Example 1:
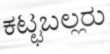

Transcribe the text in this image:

ಕಟ್ಟಬಲ್ಲರು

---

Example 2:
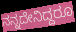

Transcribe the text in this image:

ನನ್ನದೇನಿದ್ದರೂ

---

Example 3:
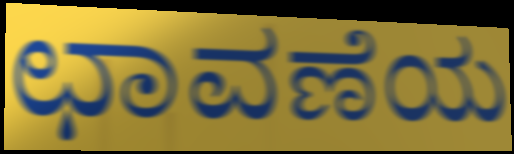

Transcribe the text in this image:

ಛಾವಣೆಯ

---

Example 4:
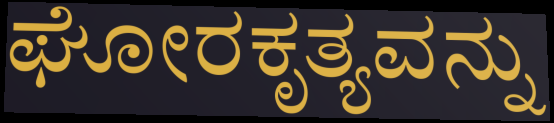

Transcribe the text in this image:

ಘೋರಕೃತ್ಯವನ್ನು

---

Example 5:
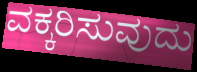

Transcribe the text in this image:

ವಕ್ಕರಿಸುವುದು